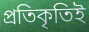
প্রতিকৃতিই